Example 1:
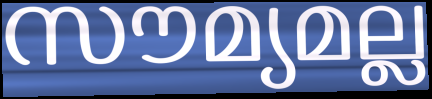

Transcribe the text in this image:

സൗമ്യമല്ല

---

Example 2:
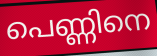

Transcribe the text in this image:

പെണ്ണിനെ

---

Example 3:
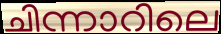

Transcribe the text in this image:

ചിന്നാറിലെ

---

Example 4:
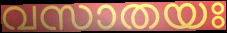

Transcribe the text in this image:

വസാതയഃ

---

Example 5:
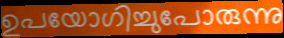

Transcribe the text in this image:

ഉപയോഗിച്ചുപോരുന്നു